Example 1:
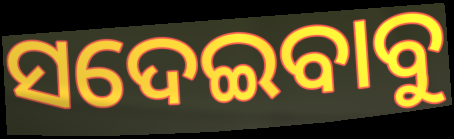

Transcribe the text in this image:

ସଦେଇବାବୁ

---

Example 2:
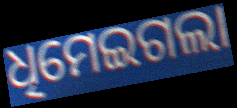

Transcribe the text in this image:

ଧିମେଇଗଲା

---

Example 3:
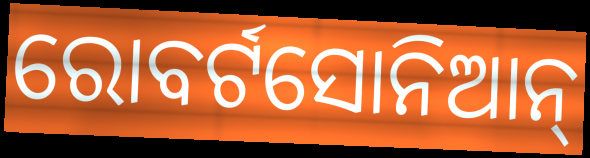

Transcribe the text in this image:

ରୋବର୍ଟସୋନିଆନ୍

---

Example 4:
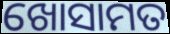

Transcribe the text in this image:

ଖୋସାମତ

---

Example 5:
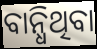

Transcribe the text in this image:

ବାନ୍ଧିଥିବା